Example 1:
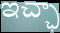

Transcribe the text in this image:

ఇచ్ఛా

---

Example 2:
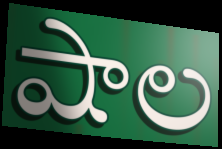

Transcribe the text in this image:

షాల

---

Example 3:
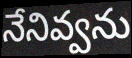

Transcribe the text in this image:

నేనివ్వను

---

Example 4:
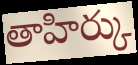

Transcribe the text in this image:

తాహిర్కు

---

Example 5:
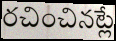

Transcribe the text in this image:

రచించినట్లే